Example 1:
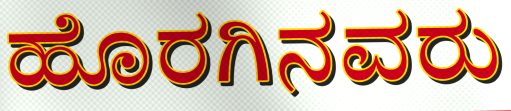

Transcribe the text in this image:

ಹೊರಗಿನವರು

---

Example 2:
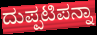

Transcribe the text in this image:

ದುಪ್ಪಟಿಪನ್ನಾ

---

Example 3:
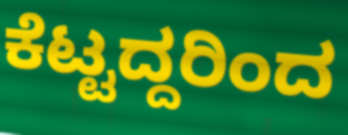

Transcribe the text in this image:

ಕೆಟ್ಟದ್ದರಿಂದ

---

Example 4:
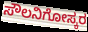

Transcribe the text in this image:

ಸೌಲನಿಗೋಸ್ಕರ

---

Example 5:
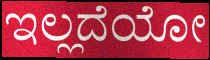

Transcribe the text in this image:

ಇಲ್ಲದೆಯೋ